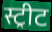
स्ट्रीट